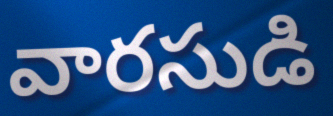
వారసుడి